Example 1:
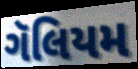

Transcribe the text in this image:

ગૅલિયમ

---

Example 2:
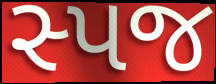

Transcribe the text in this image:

સ્પજ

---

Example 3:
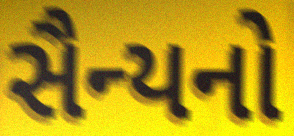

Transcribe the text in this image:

સૈન્યનો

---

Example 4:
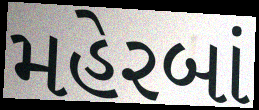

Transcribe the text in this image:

મહેરબાં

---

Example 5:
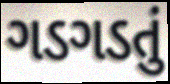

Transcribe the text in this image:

ગડગડતું